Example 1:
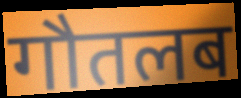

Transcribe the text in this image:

गौतलब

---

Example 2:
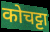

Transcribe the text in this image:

कोचट्टा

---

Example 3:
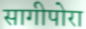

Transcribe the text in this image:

सागीपोरा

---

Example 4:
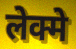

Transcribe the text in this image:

लेक्मे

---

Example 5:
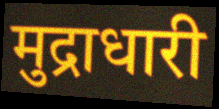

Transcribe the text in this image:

मुद्राधारी